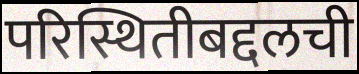
परिस्थितीबद्दलची